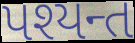
પશ્યન્ત